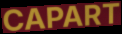
CAPART